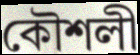
কৌশলী